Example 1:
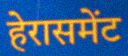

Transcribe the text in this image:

हेरासमेंट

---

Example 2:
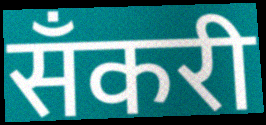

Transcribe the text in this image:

सँकरी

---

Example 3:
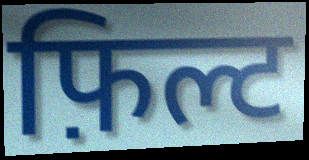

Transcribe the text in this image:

फ़िल्ट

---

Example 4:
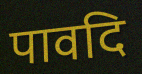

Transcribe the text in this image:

पावदि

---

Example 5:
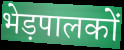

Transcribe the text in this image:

भेड़पालकों